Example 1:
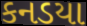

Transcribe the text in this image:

કનડયા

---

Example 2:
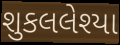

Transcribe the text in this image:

શુકલલેશ્યા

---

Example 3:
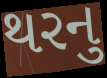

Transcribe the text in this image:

થરનુ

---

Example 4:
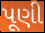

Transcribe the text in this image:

પૂણી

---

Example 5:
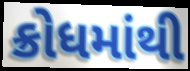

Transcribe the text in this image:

ક્રોધમાંથી